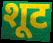
शूट